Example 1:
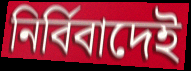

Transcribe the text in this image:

নির্বিবাদেই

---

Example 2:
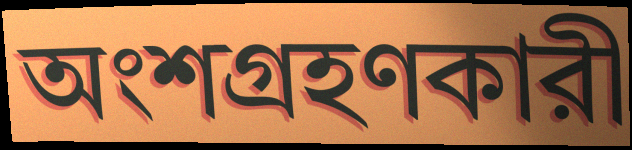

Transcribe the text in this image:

অংশগ্রহণকারী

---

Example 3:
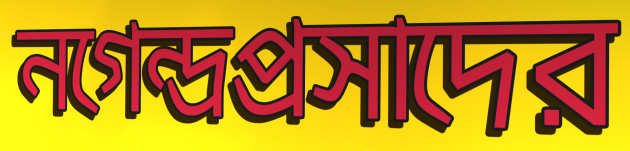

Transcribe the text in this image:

নগেন্দ্রপ্রসাদের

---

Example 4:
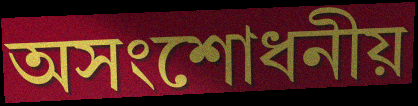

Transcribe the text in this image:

অসংশোধনীয়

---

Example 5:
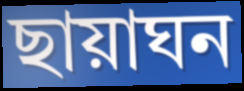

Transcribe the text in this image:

ছায়াঘন